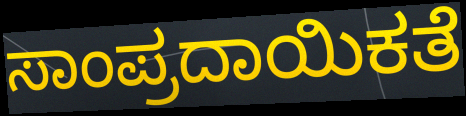
ಸಾಂಪ್ರದಾಯಿಕತೆ